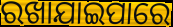
ରଖାଯାଇପାରେ